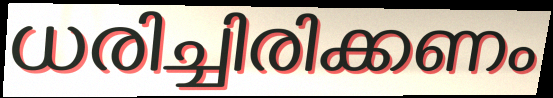
ധരിച്ചിരിക്കണം